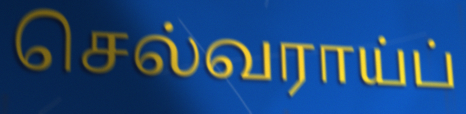
செல்வராய்ப்